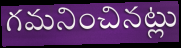
గమనించినట్లు